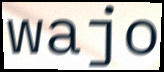
wajo